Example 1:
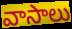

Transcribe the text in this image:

వాసాలు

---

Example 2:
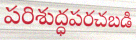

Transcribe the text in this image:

పరిశుద్ధపరచబడి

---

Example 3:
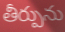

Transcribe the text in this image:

తీర్పును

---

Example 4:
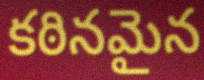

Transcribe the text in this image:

కఠినమైన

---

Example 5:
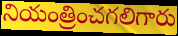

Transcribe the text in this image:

నియంత్రించగలిగారు